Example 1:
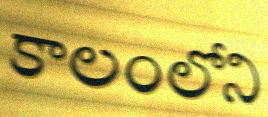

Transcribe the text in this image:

కాలంలోని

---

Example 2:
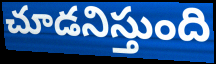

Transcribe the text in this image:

చూడనిస్తుంది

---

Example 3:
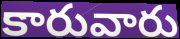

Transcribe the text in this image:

కారువారు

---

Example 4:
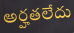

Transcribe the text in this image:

అర్హతలేదు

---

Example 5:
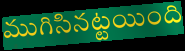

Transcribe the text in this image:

ముగిసినట్టయింది